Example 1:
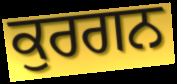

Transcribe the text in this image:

ਕੁਰਗਨ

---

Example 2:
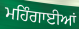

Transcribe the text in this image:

ਮਹਿੰਗਾਈਆਂ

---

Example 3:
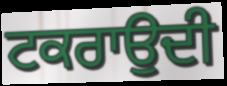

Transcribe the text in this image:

ਟਕਰਾਉਦੀ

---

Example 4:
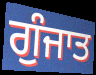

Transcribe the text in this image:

ਗੁੰਜਾਤ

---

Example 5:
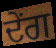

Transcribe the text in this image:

ਦੇਂਗ